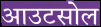
आउटसोल